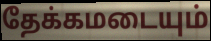
தேக்கமடையும்